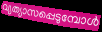
വ്യത്യാസപ്പെടുമ്പോൾ